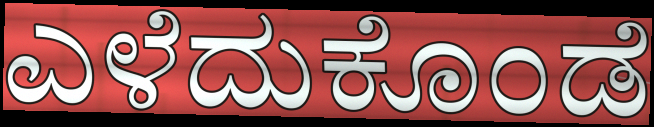
ಎಳೆದುಕೊಂಡೆ